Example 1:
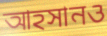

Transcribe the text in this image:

আহসানও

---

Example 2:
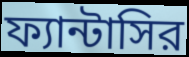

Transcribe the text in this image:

ফ্যান্টাসির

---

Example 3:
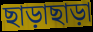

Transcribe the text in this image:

ছাড়াছাড়া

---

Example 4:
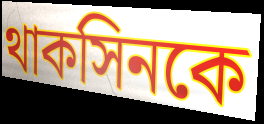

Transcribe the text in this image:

থাকসিনকে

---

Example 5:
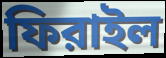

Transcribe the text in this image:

ফিরাইল